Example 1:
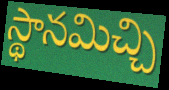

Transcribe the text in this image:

స్థానమిచ్చి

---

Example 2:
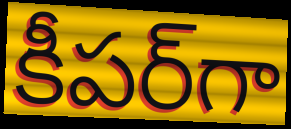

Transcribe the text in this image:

కీపర్‌గా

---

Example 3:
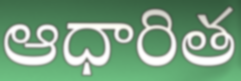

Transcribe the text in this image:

ఆధారిత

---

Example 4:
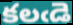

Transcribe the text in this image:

కలఁడె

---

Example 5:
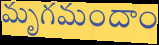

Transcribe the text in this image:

మృగమందాం